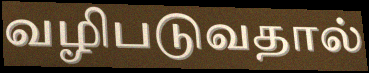
வழிபடுவதால்